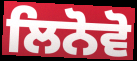
ਲਿਨੋਵੋ